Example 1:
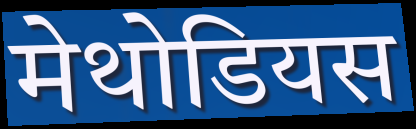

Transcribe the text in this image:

मेथोडियस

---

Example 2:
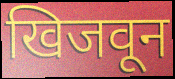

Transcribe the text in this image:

खिजवून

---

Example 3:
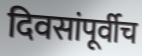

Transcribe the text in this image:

दिवसांपूर्वीच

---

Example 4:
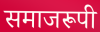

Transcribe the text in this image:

समाजरूपी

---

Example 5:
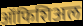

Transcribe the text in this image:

ऑफिशिअल